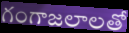
గంగాజలాలతో